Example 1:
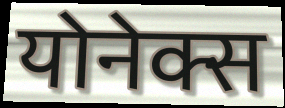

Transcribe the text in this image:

योनेक्स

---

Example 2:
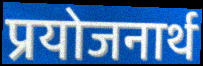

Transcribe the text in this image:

प्रयोजनार्थ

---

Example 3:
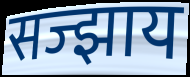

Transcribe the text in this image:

सज्झाय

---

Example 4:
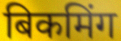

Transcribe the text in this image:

बिकमिंग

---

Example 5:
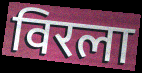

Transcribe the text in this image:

विरला